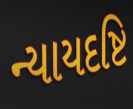
ન્યાયદષ્ટિ